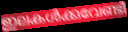
ഇലകൾക്കുവേണ്ടി